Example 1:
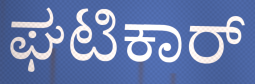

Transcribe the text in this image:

ಘಟಿಕಾರ್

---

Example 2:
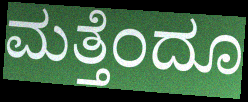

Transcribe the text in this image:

ಮತ್ತೆಂದೂ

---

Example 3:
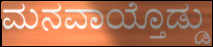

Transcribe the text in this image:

ಮನವಾಯ್ತೊಡ್ಡು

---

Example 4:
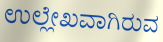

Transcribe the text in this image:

ಉಲ್ಲೇಖವಾಗಿರುವ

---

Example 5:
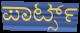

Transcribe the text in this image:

ಪಾರ್ಟ್ಸ್